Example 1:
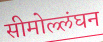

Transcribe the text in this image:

सीमोल्लंघन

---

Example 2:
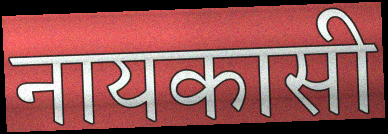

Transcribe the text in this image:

नायकासी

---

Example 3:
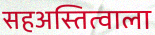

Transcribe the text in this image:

सहअस्तित्वाला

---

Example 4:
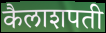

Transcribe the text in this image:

कैलाशपती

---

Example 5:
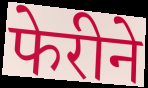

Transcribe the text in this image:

फेरीने